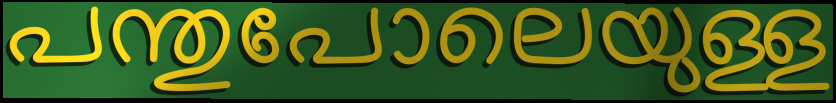
പന്തുപോലെയുള്ള